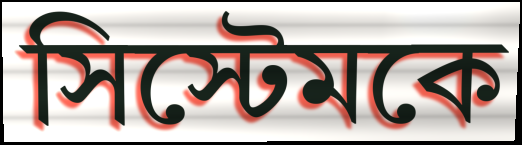
সিস্টেমকে